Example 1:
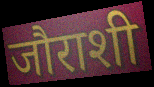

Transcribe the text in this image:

जौराशी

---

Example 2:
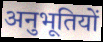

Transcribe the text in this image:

अनुभूतियों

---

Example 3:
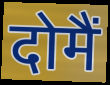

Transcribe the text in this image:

दोमैं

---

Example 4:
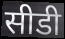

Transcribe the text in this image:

सीडी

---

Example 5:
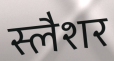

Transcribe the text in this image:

स्लैशर